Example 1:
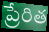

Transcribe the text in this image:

ప్రేరిత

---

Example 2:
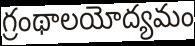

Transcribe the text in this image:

గ్రంథాలయోద్యమం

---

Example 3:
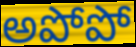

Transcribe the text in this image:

అపోపో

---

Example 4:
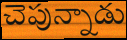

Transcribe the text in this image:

చెపున్నాడు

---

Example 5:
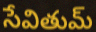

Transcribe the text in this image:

సేవితుమ్